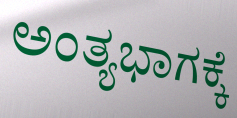
ಅಂತ್ಯಭಾಗಕ್ಕೆ